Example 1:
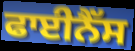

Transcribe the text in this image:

ਫਾਈਨੈੱਸ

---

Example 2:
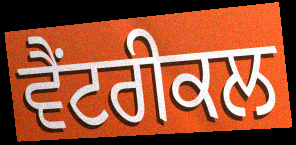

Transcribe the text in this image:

ਵੈਂਟਰੀਕਲ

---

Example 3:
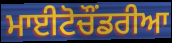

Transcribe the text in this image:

ਮਾਈਟੋਚੌਂਡਰੀਆ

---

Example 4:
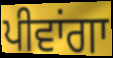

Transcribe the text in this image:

ਪੀਵਾਂਗਾ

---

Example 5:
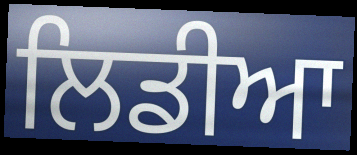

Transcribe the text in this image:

ਲਿਡੀਆ